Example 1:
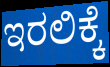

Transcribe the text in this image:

ಇರಲಿಕ್ಕೆ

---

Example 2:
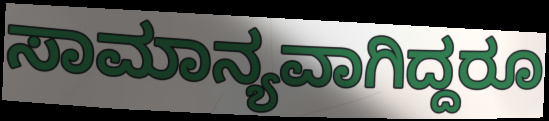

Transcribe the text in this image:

ಸಾಮಾನ್ಯವಾಗಿದ್ದರೂ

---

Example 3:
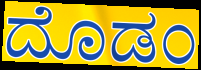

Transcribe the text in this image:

ದೊಡಂ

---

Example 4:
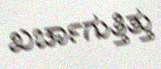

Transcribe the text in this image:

ಖರ್ಚಾಗುತ್ತಿತ್ತು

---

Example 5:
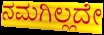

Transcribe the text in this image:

ನಮಗಿಲ್ಲದೇ